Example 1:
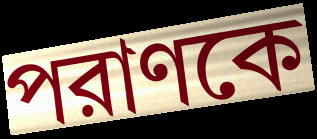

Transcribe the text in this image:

পরাণকে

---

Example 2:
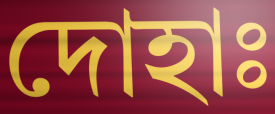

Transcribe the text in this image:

দোহাঃ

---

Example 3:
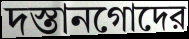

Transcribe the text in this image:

দস্তানগোদের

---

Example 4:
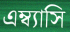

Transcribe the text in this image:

এম্ব্যাসি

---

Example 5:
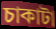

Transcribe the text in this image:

চাকাটা